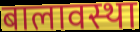
बालावस्था